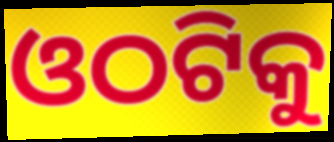
ଓଠଟିକୁ